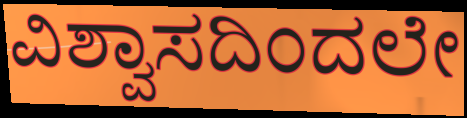
ವಿಶ್ವಾಸದಿಂದಲೇ